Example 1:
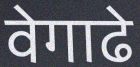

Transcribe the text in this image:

वेगाढे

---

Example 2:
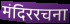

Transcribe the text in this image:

मंदिररचना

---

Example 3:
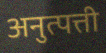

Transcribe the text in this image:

अनुत्पत्ती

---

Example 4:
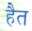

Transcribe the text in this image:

हैत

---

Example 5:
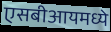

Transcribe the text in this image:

एसबीआयमध्ये